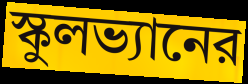
স্কুলভ্যানের